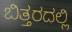
ಬಿತ್ತರದಲ್ಲಿ